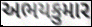
અભયકુમાર